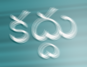
కద్దు